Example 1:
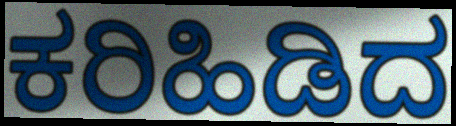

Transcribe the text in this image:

ಕರಿಹಿಡಿದ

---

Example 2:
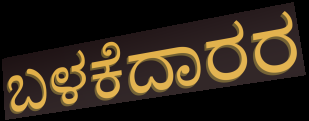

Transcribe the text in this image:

ಬಳಕೆದಾರರ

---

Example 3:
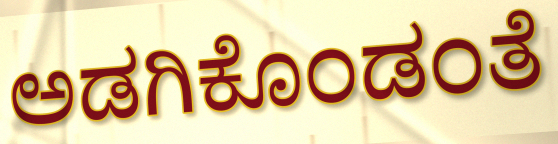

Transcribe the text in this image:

ಅಡಗಿಕೊಂಡಂತೆ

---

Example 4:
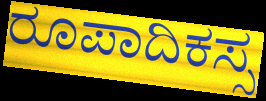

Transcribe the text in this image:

ರೂಪಾದಿಕಸ್ಸ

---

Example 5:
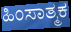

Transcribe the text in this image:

ಹಿಂಸಾತ್ಮಕ